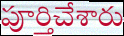
పూర్తిచేశారు